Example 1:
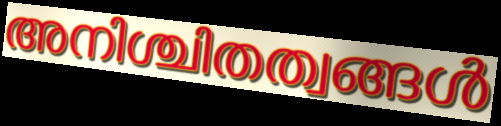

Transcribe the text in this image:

അനിശ്ചിതത്വങ്ങൾ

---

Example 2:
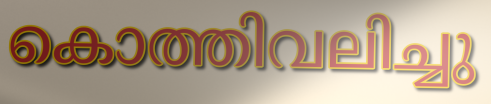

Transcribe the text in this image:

കൊത്തിവലിച്ചു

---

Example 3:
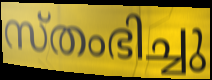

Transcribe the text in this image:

സ്തംഭിച്ചു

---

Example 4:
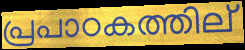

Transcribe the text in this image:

പ്രപാഠകത്തില്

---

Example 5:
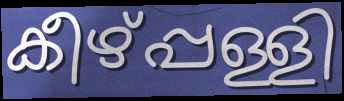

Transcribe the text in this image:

കീഴ്പ്പള്ളി